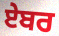
ਏਬਰ